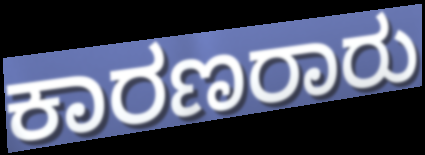
ಕಾರಣರಾರು